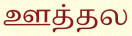
ஊத்தல